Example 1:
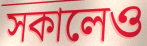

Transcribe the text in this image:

সকালেও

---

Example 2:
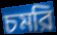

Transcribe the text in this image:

চমরি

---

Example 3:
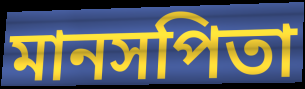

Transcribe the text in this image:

মানসপিতা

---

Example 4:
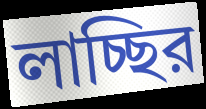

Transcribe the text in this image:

লাচ্ছির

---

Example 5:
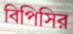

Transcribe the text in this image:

বিপিসির